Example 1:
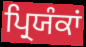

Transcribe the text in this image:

ਪ੍ਰਿਯੰਕਾਂ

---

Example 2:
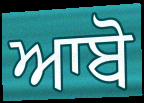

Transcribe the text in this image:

ਆਬੋ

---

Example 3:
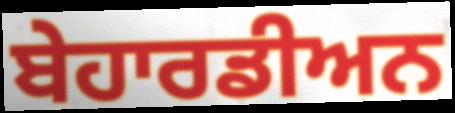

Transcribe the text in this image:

ਬੇਹਾਰਡੀਅਨ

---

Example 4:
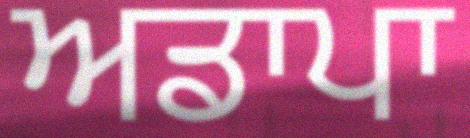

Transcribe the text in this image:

ਅਡਾਪਾ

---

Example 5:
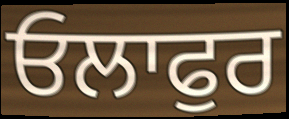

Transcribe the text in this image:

ਓਲਾਫੁਰ